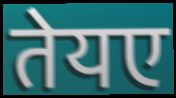
तेयए